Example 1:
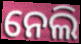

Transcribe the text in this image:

ନେଲି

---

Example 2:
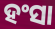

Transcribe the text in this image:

ହଂସା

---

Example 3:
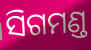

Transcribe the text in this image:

ସିଗମଣ୍ଡ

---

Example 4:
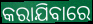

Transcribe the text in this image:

କରାଯିବାରେ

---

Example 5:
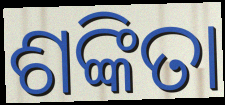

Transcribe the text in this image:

ଶଙ୍କିତା